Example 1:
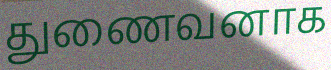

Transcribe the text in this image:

துணைவனாக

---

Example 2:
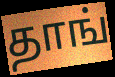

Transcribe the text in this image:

தாங்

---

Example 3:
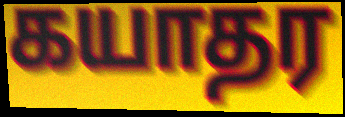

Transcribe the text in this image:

கயாதர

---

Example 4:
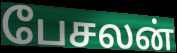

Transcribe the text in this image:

பேசலன்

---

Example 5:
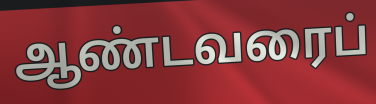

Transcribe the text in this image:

ஆண்டவரைப்